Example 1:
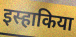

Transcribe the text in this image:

इस्हाकिया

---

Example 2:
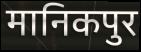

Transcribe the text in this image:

मानिकपुर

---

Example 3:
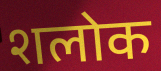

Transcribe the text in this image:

शलोक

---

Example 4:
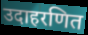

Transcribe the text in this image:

उदाहरणित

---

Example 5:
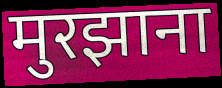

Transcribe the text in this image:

मुरझाना